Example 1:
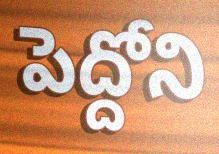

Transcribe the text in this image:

పెద్దోని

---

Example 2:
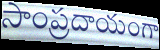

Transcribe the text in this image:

సాంప్రదాయంగా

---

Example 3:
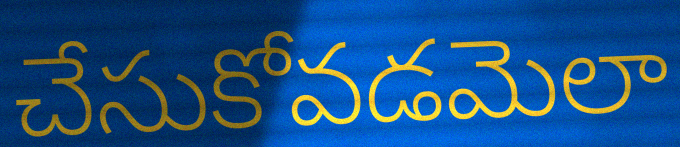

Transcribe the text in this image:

చేసుకోవడమెలా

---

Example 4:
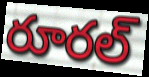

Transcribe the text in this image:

రూరల్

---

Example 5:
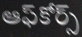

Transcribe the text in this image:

ఆఫ్‌కోర్స్